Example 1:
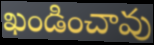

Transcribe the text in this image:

ఖండించావు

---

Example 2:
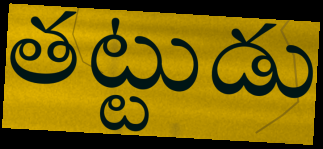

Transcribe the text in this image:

తట్టుడు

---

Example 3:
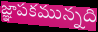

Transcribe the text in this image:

జ్ఞాపకమున్నది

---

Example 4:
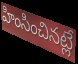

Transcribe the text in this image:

హింసించినట్లే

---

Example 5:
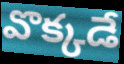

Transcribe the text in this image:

వొక్కడే